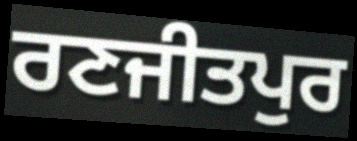
ਰਣਜੀਤਪੁਰ